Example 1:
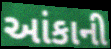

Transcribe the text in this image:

આંકાની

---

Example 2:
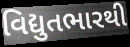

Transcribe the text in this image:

વિદ્યુતભારથી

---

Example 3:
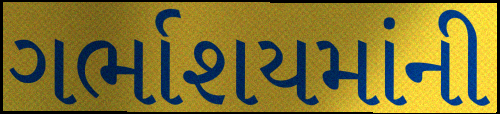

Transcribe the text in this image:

ગર્ભાશયમાંની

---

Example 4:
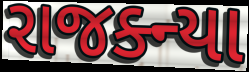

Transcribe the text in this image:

રાજક્ન્યા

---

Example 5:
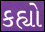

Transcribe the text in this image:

કહ્યો